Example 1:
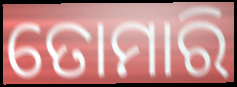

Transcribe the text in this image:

ତୋମାରି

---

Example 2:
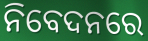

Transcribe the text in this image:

ନିବେଦନରେ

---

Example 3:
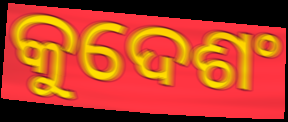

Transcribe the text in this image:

କୁଦେଶଂ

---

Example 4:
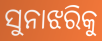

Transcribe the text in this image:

ସୁନାଝରିକୁ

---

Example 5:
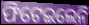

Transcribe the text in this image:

ଫିଟେଇଲେନି